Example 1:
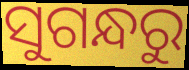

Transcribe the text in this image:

ସୁଗନ୍ଧରୁ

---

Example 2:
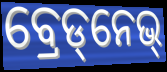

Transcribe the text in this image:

ବ୍ରେଡ୍‌ନେଭ୍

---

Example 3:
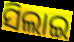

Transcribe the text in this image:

ସିଲାଇ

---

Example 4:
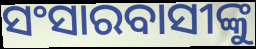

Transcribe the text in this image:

ସଂସାରବାସୀଙ୍କୁ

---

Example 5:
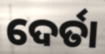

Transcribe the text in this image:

ଦେର୍ତା